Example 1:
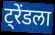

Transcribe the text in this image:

ट्रेंडला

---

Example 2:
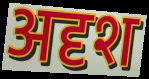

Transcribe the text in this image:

अदृश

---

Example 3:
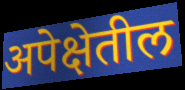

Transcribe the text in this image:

अपेक्षेतील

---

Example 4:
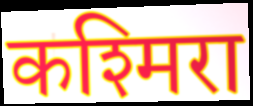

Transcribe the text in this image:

कश्मिरा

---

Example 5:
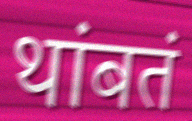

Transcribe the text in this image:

थांबतं